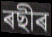
ৰছীৰ